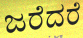
ಜರೆದರೆ